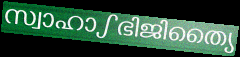
സ്വാഹാഽഭിജിത്യൈ